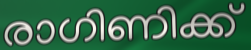
രാഗിണിക്ക്